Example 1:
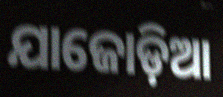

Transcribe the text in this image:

ଯାଜୋଡ଼ିଆ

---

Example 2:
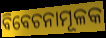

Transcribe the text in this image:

ବିବେଚନାମୂଳକ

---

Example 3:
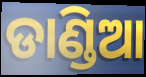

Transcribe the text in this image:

ଡାଣ୍ଡିଆ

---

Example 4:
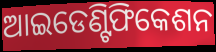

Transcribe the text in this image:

ଆଇଡେଣ୍ଟିଫିକେଶନ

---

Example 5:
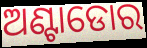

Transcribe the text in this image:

ଅଣ୍ଟାଡୋର